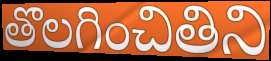
తొలగించితిని